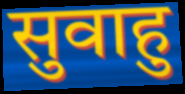
सुवाहु